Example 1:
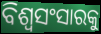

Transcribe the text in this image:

ବିଶ୍ୱସଂସାରକୁ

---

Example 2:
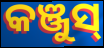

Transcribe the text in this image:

କଞ୍ଜୁସ୍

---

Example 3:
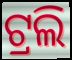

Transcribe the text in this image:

ଟ୍ରଲି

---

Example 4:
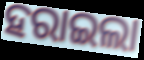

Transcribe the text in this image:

ହରାଇଲା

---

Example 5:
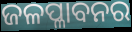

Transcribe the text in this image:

ଜଳପ୍ଳାବନର